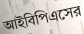
আইবিপিএসের